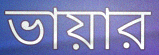
ভায়ার